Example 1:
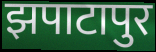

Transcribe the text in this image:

झपाटापुर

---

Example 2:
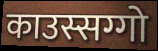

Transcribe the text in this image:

काउस्सग्गो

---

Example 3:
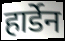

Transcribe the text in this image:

हार्डेन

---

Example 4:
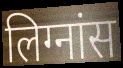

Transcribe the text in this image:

लिग्नांस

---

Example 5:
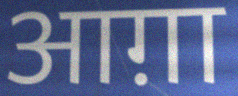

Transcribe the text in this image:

आग़ा